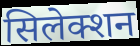
सिलेक्शन